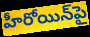
హీరోయిన్‌పై